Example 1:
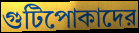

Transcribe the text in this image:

গুটিপোকাদের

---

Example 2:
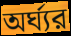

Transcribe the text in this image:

অর্ঘ্যর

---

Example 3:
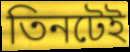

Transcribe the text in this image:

তিনটেই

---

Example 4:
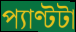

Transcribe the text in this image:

প্যাণ্টটা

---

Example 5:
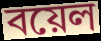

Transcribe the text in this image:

বয়েল